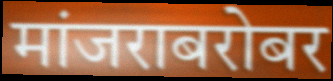
मांजराबरोबर